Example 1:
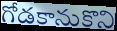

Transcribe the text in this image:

గోడకానుకొని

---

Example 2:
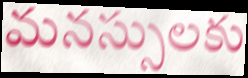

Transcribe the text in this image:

మనస్సులకు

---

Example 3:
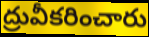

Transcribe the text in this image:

ద్రువీకరించారు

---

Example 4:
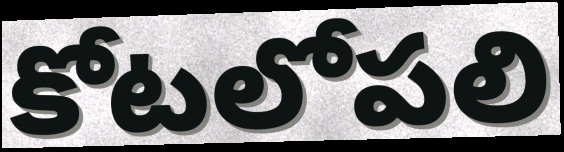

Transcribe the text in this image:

కోటలోపలి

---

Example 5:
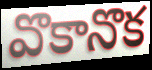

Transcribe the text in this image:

వొకానొక